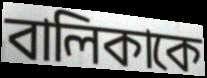
বালিকাকে